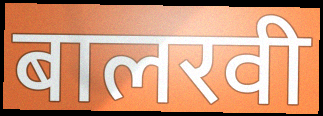
बालरवी